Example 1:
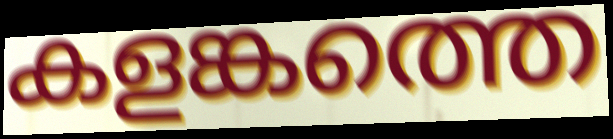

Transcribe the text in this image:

കളങ്കത്തെ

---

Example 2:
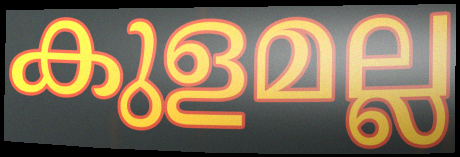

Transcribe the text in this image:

കുളമല്ല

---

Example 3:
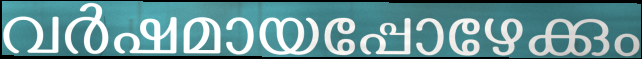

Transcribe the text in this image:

വർഷമായപ്പോഴേക്കും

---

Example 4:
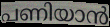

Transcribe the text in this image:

പണിയാൻ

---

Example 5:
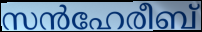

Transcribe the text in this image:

സൻഹേരീബ്